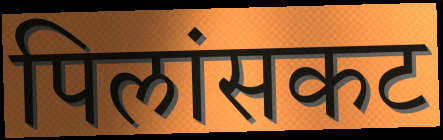
पिलांसकट